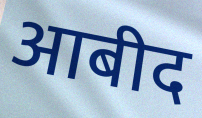
आबीद